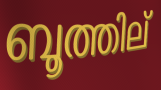
ബൂത്തില്